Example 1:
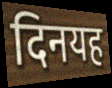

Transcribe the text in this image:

दिनयह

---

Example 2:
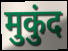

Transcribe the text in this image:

मुकुंद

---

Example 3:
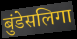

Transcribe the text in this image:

बुंडेसलिगा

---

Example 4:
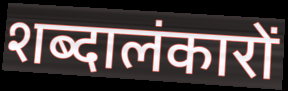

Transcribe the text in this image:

शब्दालंकारों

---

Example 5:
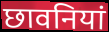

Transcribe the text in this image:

छावनियां